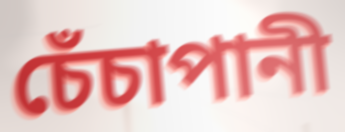
চেঁচাপানী